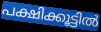
പക്ഷിക്കൂട്ടിൽ